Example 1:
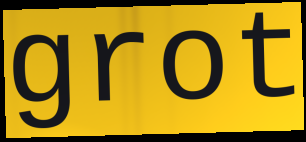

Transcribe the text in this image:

grot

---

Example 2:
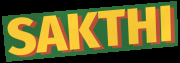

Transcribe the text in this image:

SAKTHI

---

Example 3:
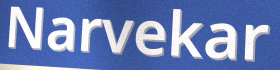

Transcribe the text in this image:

Narvekar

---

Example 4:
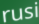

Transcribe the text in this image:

rusi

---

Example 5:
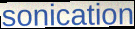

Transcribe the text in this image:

sonication